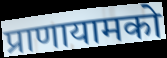
प्राणायामको